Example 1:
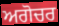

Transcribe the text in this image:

ਅਗੋਚਰ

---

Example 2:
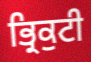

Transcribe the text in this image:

ਭ੍ਰਿਕੁਟੀ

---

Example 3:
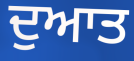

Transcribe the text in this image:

ਦੁਆਤ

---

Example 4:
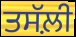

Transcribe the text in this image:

ਤਸੱਲ਼ੀ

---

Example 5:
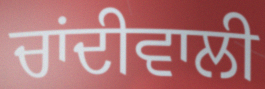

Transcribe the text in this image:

ਚਾਂਦੀਵਾਲੀ